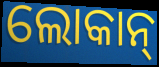
ଲୋକାନ୍